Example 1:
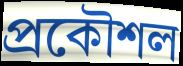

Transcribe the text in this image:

প্ৰকৌশল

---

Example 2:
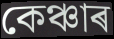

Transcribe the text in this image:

কেঞ্চাৰ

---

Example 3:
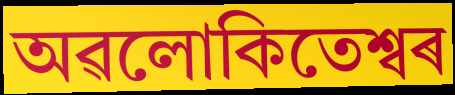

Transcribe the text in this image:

অৱলোকিতেশ্বৰ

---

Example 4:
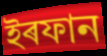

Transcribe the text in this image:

ইৰফান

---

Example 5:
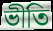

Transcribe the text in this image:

ভীতি